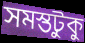
সমস্তটুকু